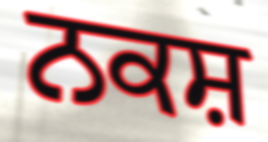
ਨਕਸ਼